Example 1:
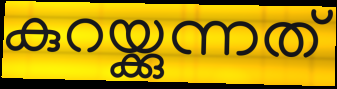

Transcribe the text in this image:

കുറയ്ക്കുന്നത്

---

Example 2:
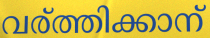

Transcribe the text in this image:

വര്ത്തിക്കാന്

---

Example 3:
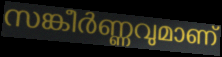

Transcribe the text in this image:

സങ്കീർണ്ണവുമാണ്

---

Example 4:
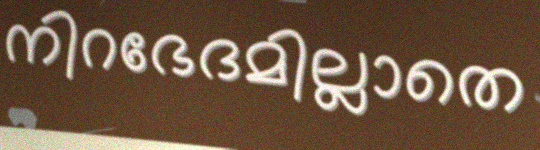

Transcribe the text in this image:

നിറഭേദമില്ലാതെ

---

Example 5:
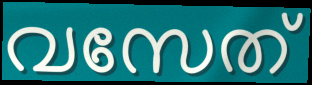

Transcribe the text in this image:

വസേത്